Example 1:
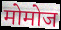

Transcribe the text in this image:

मोमोज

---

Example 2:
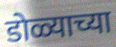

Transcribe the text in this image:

डोळ्याच्या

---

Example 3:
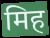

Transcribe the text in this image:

मिह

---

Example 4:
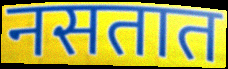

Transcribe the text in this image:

नसतात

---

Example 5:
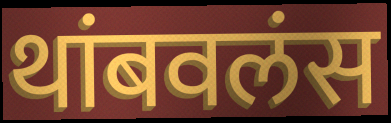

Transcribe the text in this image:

थांबवलंस